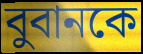
বুবানকে